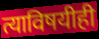
त्याविषयीही